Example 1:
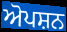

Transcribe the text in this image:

ਅੋਪਸ਼ਨ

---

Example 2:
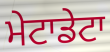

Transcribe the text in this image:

ਮੇਟਾਡੇਟਾ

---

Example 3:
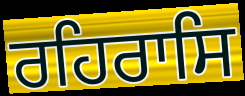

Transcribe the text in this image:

ਰਹਿਰਾਸਿ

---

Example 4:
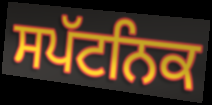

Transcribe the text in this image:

ਸਪੱਟਨਿਕ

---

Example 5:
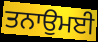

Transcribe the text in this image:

ਤਨਾਉਮਈ